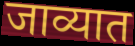
जाव्यात